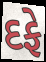
દફે